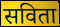
सविता